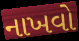
નાખવો